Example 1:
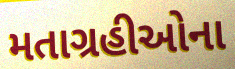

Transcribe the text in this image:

મતાગ્રહીઓના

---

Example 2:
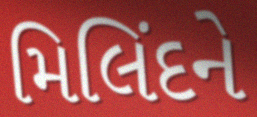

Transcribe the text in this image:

મિલિંદને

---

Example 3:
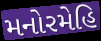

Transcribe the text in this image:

મનોરમેહિ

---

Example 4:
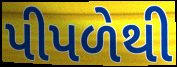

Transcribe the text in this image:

પીપળેથી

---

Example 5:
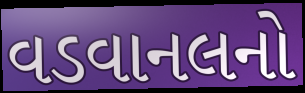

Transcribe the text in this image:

વડવાનલનો